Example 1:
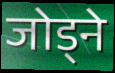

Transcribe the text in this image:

जोड्ने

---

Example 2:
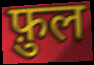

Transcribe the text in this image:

फ़ुल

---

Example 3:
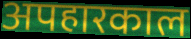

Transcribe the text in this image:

अपहारकाल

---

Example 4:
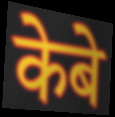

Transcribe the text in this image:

केबे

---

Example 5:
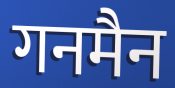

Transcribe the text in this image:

गनमैन